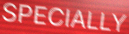
SPECIALLY